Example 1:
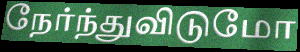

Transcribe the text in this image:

நேர்ந்துவிடுமோ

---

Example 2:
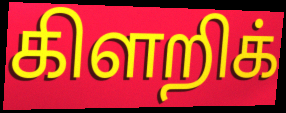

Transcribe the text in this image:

கிளறிக்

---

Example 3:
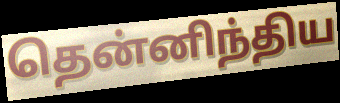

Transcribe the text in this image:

தென்னிந்திய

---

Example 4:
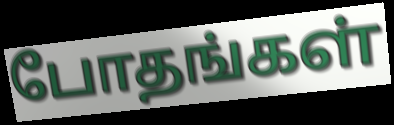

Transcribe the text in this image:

போதங்கள்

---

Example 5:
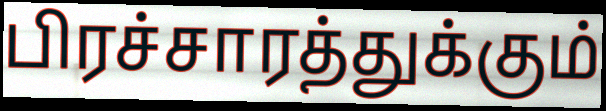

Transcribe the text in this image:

பிரச்சாரத்துக்கும்